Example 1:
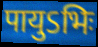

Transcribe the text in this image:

पायुऽभिः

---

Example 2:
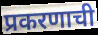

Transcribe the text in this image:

प्रकरणाची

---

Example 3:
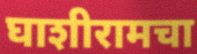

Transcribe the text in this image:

घाशीरामचा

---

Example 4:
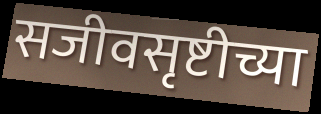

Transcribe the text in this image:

सजीवसृष्टीच्या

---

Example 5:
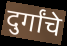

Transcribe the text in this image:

दुर्गांचे